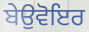
ਬੇਉਵੋਇਰ